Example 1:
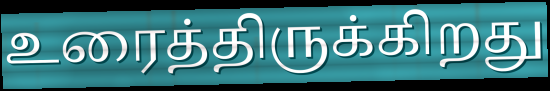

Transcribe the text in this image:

உரைத்திருக்கிறது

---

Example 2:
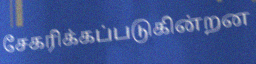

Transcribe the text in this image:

சேகரிக்கப்படுகின்றன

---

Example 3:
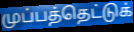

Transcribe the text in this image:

முப்பத்தெட்டுக்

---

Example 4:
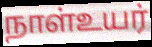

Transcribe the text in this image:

நாள்உயர்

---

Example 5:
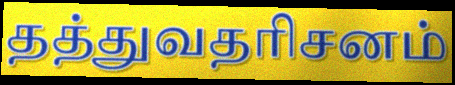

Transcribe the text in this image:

தத்துவதரிசனம்